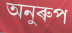
অনুৰুপ